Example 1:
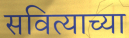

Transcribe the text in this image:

सवित्याच्या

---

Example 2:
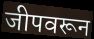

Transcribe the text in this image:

जीपवरून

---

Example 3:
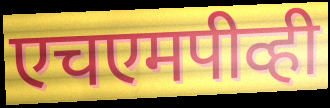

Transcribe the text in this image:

एचएमपीव्ही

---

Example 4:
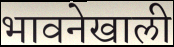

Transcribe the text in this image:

भावनेखाली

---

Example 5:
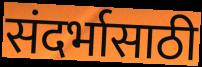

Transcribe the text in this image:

संदर्भासाठी